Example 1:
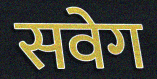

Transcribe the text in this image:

सवेग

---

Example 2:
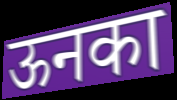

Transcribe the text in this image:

ऊनका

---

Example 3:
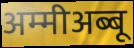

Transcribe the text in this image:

अम्मीअब्बू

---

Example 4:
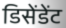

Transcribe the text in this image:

डिसेंडेंट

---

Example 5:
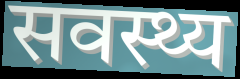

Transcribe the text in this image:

सवस्थ्य